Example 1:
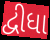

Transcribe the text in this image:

દ્વીધા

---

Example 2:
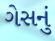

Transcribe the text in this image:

ગેસનું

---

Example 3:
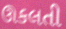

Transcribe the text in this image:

ઊકલતી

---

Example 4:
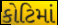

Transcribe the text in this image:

કોટિમાં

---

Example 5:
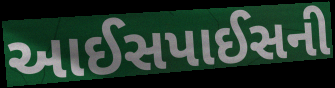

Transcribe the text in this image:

આઈસપાઈસની